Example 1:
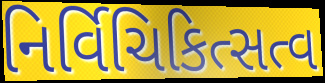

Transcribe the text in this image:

નિર્વિચિકિત્સત્વ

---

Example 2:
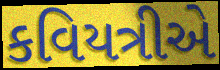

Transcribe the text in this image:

કવિયત્રીએ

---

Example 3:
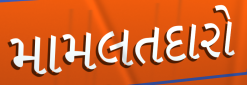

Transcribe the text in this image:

મામલતદારો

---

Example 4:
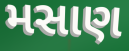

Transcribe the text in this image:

મસાણ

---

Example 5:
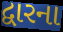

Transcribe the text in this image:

દ્વારના